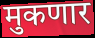
मुकणार